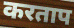
करताप